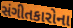
સંગીતકારોના